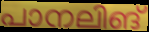
പാനലിങ്